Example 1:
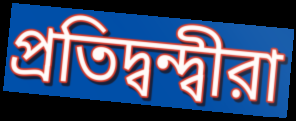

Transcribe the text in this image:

প্রতিদ্বন্দ্বীরা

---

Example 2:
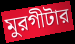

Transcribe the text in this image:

মুরগীটার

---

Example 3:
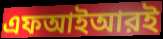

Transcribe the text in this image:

এফআইআরই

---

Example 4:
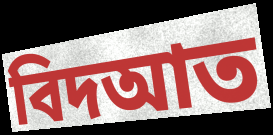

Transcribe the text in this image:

বিদআত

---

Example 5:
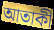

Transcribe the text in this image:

আতাকী